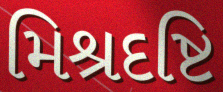
મિશ્રદષ્ટિ